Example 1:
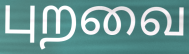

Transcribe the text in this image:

புறவை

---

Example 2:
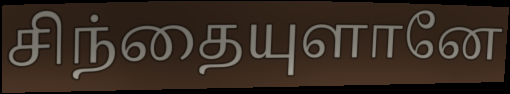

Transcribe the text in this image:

சிந்தையுளானே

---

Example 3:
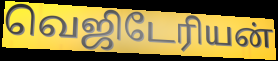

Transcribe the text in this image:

வெஜிடேரியன்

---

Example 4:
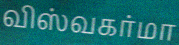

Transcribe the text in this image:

விஸ்வகர்மா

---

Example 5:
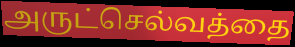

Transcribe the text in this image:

அருட்செல்வத்தை